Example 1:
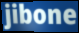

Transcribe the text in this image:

jibone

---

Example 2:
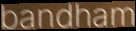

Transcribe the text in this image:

bandham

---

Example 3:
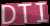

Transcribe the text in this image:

DTI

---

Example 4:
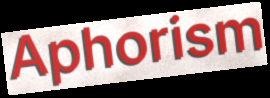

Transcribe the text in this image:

Aphorism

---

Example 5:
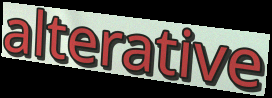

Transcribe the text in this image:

alterative